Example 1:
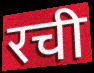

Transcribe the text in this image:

रची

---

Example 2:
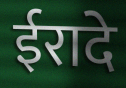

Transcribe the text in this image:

ईरादे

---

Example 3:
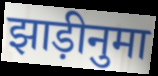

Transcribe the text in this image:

झाड़ीनुमा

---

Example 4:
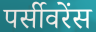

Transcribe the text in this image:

पर्सीवरेंस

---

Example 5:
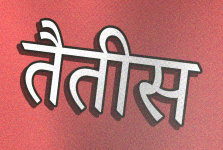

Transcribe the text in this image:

तैतीस